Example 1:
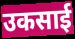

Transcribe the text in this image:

उकसाई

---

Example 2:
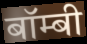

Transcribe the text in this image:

बॉम्बी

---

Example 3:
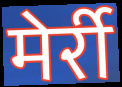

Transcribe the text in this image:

मेर्री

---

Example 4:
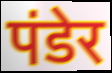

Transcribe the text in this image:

पंडेर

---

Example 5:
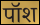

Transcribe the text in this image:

पॉश